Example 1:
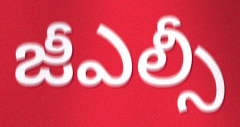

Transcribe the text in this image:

జీఎల్సీ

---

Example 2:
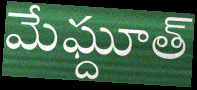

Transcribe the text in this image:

మేఘ్దూత్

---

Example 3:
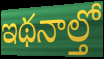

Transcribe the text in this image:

ఇథనాల్తో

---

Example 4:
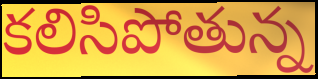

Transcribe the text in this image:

కలిసిపోతున్న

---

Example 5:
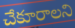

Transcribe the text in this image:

చేకూరాలని